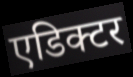
एडिक्टर